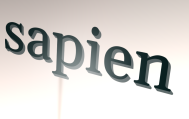
sapien